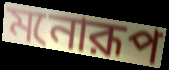
মনোরূপ